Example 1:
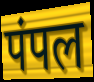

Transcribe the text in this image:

पंपल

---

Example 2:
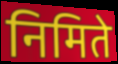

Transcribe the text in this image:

निमिते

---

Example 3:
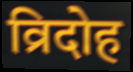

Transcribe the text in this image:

व्रिदोह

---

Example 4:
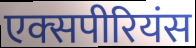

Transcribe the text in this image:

एक्‍सपीरियंस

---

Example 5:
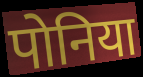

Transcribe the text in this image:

पोनिया